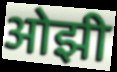
ओझी